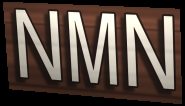
NMN